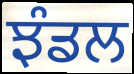
ਝੰਡਲ